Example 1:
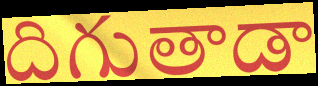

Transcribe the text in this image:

దిగుతాడా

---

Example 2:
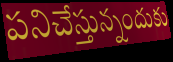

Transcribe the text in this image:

పనిచేస్తున్నందుకు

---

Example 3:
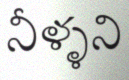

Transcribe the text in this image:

నీళ్ళని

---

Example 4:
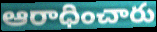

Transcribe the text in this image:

ఆరాధించారు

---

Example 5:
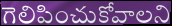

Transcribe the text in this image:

గెలిపించుకోవాలని